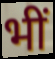
भीं